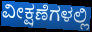
ವೀಕ್ಷಣೆಗಳಲ್ಲಿ